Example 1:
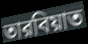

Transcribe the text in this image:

তারবিয়াত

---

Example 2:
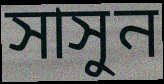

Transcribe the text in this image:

সাসুন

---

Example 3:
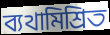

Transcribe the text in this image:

ব্যথামিশ্রিত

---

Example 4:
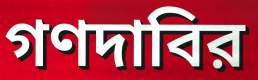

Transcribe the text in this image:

গণদাবির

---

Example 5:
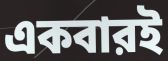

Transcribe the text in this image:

একবারই